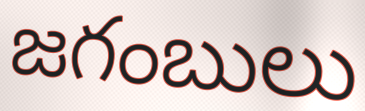
జగంబులు